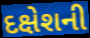
દક્ષેશની